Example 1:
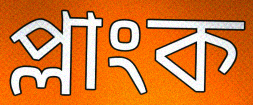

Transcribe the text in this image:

প্লাংক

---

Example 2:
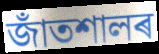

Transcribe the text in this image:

জাঁতশালৰ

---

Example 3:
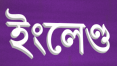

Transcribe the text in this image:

ইংলেণ্ড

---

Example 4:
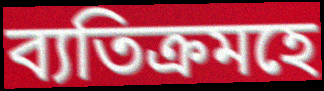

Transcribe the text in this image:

ব্যতিক্ৰমহে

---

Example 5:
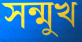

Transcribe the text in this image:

সন্মুখ